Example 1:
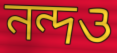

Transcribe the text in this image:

নন্দও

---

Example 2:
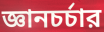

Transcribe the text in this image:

জ্ঞানচর্চার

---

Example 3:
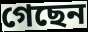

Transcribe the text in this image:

গেছেন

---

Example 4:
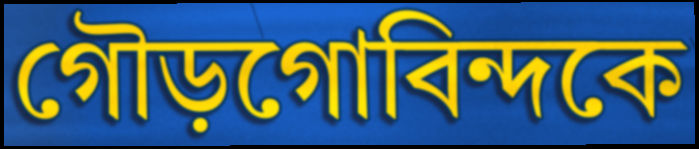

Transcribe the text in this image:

গৌড়গোবিন্দকে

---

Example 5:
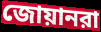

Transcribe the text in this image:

জোয়ানরা